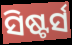
ସିଷ୍ଟର୍ସ